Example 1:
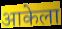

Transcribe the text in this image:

आकेला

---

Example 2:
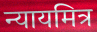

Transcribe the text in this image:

न्यायमित्र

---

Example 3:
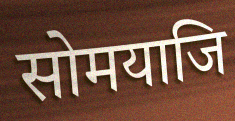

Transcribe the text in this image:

सोमयाजि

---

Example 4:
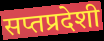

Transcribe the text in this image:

सप्तप्रदेशी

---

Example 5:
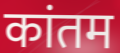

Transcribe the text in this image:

कांतम